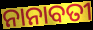
ନାନାବତୀ